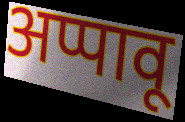
अप्पावू